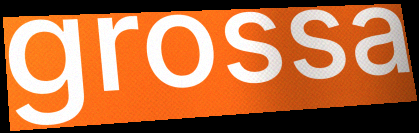
grossa